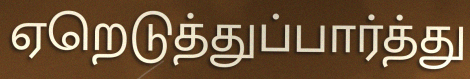
ஏறெடுத்துப்பார்த்து